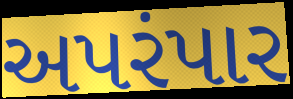
અપરંપાર